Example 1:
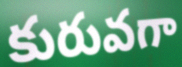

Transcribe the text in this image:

కురువగా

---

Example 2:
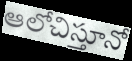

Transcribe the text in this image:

ఆలోచిస్తూనో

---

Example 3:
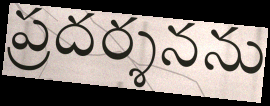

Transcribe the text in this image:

ప్రదర్శనను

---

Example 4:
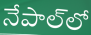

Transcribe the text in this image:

నేపాల్‌లో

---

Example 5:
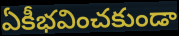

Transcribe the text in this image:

ఏకీభవించకుండా